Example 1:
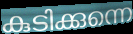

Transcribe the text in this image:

കുടിക്കുന്നെ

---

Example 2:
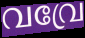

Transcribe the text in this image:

വവ്രേ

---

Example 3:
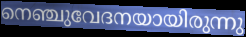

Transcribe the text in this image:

നെഞ്ചുവേദനയായിരുന്നു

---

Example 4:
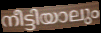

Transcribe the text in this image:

നീട്ടിയാലും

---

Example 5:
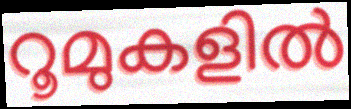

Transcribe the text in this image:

റൂമുകളിൽ